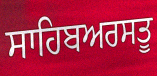
ਸਾਹਿਬਅਰਸਤੂ